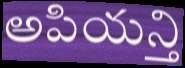
అపియన్తి